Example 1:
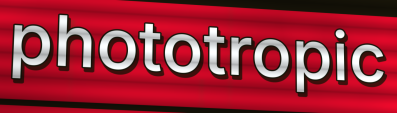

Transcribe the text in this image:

phototropic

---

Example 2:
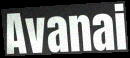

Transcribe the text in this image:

Avanai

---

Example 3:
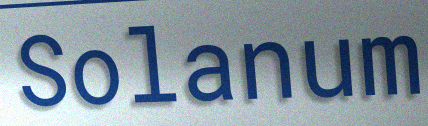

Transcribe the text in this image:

Solanum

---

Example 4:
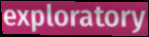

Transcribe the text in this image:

exploratory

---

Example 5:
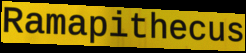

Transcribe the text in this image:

Ramapithecus